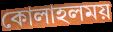
কোলাহলময়